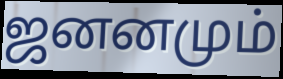
ஜனனமும்